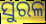
ସୁରଳ